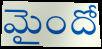
మైందో